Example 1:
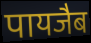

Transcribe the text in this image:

पायजैब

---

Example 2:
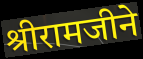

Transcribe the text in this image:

श्रीरामजीने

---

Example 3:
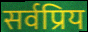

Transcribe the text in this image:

सर्वप्रिय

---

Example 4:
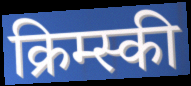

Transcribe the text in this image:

क्रिम्स्की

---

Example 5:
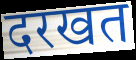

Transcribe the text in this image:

दरखत